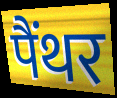
पैंथर